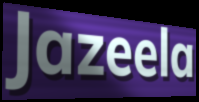
Jazeela